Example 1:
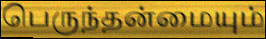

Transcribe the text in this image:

பெருந்தன்மையும்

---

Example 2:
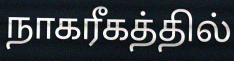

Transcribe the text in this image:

நாகரீகத்தில்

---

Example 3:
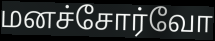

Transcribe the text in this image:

மனச்சோர்வோ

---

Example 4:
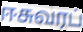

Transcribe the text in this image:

ஈசுவரப்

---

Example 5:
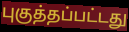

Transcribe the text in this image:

புகுத்தப்பட்டது